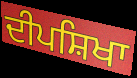
ਦੀਪਸ਼ਿਖਾ